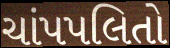
ચાંપપલિતો